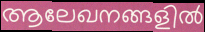
ആലേഖനങ്ങളിൽ